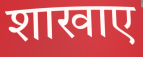
शाखाए